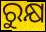
ରୁକ୍ଷ